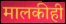
मालकीही